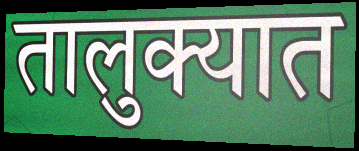
तालुक्यात